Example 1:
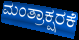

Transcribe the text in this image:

ಮಂತ್ರಾಕ್ಷರಕೆ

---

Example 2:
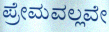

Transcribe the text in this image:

ಪ್ರೇಮವಲ್ಲವೇ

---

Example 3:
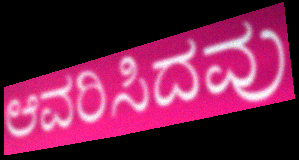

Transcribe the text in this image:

ಆವರಿಸಿದವು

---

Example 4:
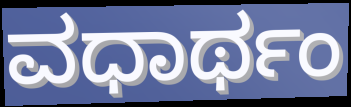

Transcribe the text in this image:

ವಧಾರ್ಥಂ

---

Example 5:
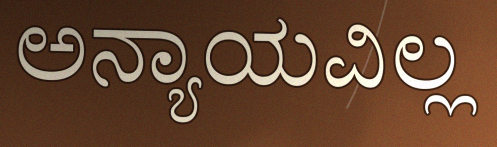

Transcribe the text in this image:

ಅನ್ಯಾಯವಿಲ್ಲ